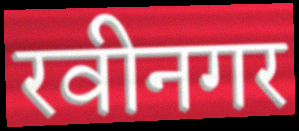
रवीनगर